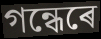
গন্ধেৰে